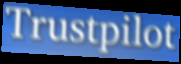
Trustpilot